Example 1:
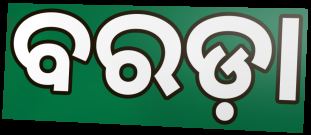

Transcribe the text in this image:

ବରଡ଼ା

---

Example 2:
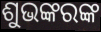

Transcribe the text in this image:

ଶୁଭଙ୍କରଙ୍କ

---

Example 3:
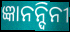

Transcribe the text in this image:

ଜ୍ଞାନନ୍ଦିନୀ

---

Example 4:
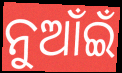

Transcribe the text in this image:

ନୁଆଁଇଁ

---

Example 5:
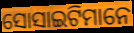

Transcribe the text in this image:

ସୋସାଇଟିମାନେ